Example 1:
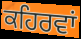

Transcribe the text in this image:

ਕਹਿਰਵਾਂ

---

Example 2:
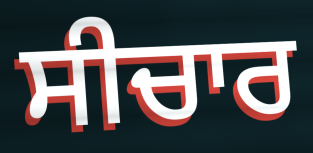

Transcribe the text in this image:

ਸੀਚਾਰ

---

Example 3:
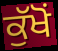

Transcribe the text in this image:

ਕੁੱਖੋਂ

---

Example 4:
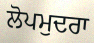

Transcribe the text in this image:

ਲੋਪਮੁਦਰਾ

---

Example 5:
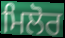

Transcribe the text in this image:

ਮਿਲੋਰ